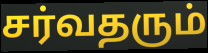
சர்வதரும்